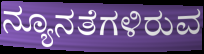
ನ್ಯೂನತೆಗಳಿರುವ